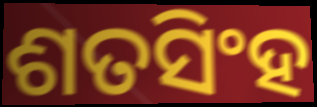
ଶତସିଂହ